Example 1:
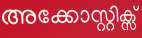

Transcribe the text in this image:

അക്കോസ്റ്റിക്സ്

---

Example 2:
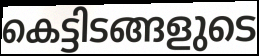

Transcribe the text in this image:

കെട്ടിടങ്ങളുടെ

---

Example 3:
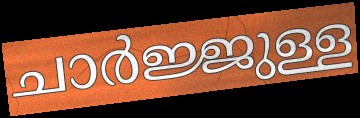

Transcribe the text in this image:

ചാർജ്ജുള്ള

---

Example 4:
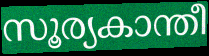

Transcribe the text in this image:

സൂര്യകാന്തീ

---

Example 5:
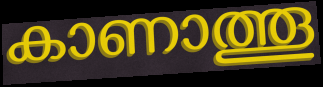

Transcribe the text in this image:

കാണാത്തൂ